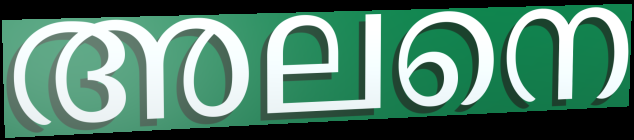
അലനെ